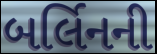
બર્લિનની